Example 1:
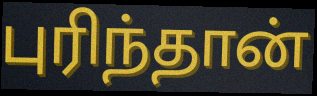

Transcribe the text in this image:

புரிந்தான்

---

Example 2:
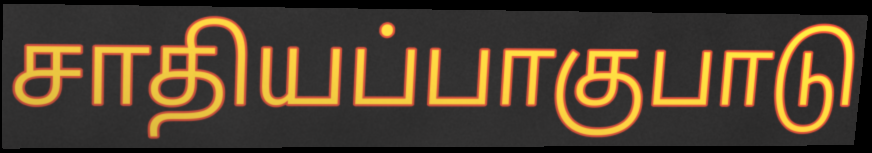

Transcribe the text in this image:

சாதியப்பாகுபாடு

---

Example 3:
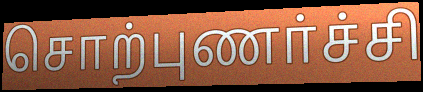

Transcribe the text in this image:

சொற்புணர்ச்சி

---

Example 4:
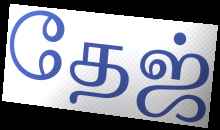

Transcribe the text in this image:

தேஜ்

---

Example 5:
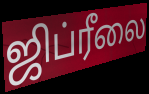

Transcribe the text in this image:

ஜிப்ரீலை